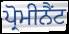
ਪ੍ਰੋਮੀਨੈਂਟ